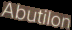
Abutilon